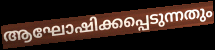
ആഘോഷിക്കപ്പെടുന്നതും